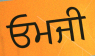
ਓਮਜੀ